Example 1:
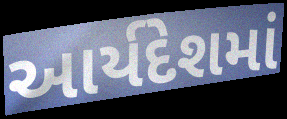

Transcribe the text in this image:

આર્યદેશમાં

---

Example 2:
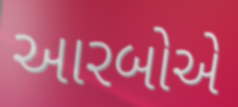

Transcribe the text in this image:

આરબોએ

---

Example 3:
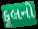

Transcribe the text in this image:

ફૂલનો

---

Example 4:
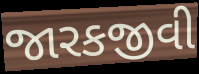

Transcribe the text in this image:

જારકજીવી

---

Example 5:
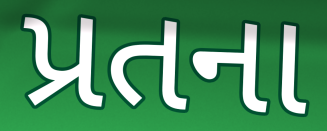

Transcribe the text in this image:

પ્રતના